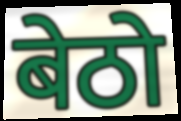
बेठो